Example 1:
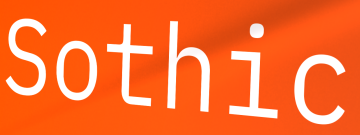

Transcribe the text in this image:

Sothic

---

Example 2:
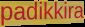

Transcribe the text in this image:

padikkira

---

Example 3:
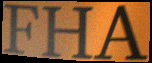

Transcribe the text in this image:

FHA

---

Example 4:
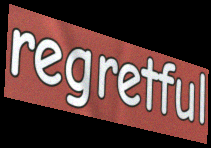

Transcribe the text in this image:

regretful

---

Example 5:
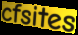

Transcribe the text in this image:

cfsites